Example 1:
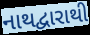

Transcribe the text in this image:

નાથદ્વારાથી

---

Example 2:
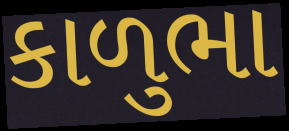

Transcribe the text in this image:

કાળુભા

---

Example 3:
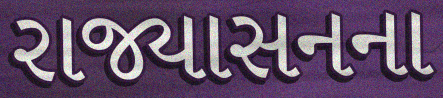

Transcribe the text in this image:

રાજ્યાસનના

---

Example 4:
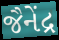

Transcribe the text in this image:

જૈનેંદ્ર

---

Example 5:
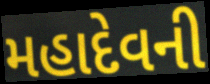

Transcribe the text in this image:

મહાદેવની